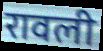
रावली